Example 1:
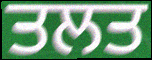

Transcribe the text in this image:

ਤਲਤ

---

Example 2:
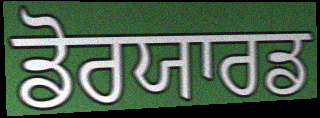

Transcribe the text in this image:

ਡੋਰਯਾਰਡ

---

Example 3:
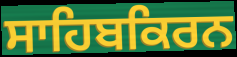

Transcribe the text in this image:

ਸਾਹਿਬਕਿਰਨ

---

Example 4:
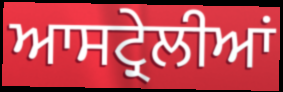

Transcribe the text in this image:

ਆਸਟ੍ਰੇਲੀਆਂ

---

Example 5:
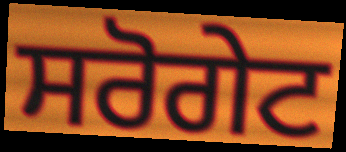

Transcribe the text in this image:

ਸਰੋਗੇਟ